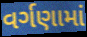
વર્ગણામાં